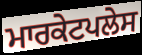
ਮਾਰਕੇਟਪਲੇਸ